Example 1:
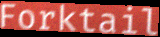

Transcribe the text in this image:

Forktail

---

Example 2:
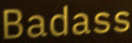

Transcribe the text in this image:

Badass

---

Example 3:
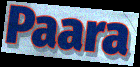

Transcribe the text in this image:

Paara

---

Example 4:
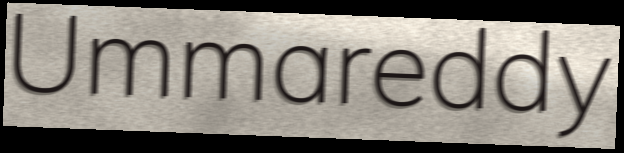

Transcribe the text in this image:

Ummareddy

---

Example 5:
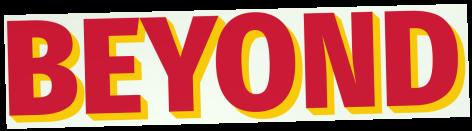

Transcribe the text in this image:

BEYOND